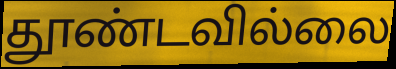
தூண்டவில்லை